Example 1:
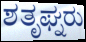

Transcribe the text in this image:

ಶತೃಘ್ನರು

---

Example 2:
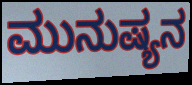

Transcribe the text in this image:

ಮುನುಷ್ಯನ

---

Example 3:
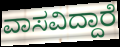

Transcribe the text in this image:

ವಾಸವಿದ್ದಾರೆ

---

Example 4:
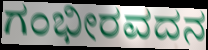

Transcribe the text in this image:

ಗಂಭೀರವದನ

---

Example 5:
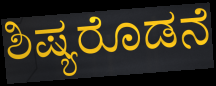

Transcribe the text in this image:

ಶಿಷ್ಯರೊಡನೆ